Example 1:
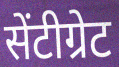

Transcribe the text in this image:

सेंटीग्रेट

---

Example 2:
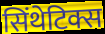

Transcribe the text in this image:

सिंथेटिक्स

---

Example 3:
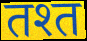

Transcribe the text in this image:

तश्त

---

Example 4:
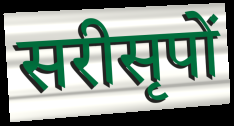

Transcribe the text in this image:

सरीसृपों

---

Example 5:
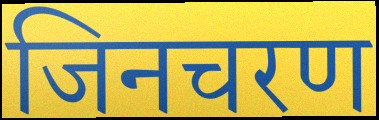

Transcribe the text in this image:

जिनचरण